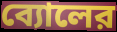
ব্যোলের